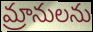
మ్రానులను